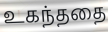
உகந்ததை